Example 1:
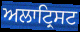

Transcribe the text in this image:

ਅਲਾਟ੍ਰਿਸਟ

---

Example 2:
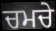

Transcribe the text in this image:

ਚਮਚੇ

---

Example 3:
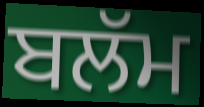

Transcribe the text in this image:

ਬਲੱਮ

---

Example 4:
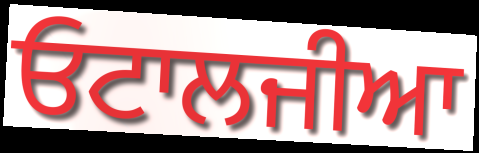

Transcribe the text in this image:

ਓਟਾਲਜੀਆ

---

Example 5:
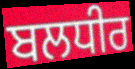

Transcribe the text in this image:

ਬਲਧੀਰ